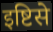
इष्टिसे